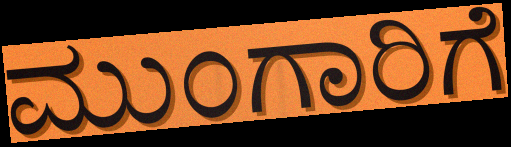
ಮುಂಗಾರಿಗೆ